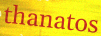
thanatos